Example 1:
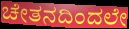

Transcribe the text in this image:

ಚೇತನದಿಂದಲೇ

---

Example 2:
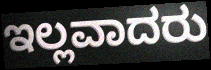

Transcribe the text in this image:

ಇಲ್ಲವಾದರು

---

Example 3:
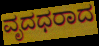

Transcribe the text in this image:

ವೃದಧರಾದ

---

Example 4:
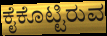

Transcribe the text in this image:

ಕೈಕೊಟ್ಟಿರುವ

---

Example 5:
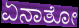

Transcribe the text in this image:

ಏನಾತೋ